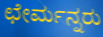
ಛೇರ್ಮನ್ನರು